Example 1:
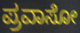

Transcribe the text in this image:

ಪ್ರವಾಸೋ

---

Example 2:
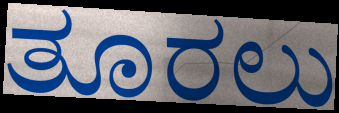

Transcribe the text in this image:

ತೂರಲು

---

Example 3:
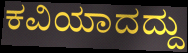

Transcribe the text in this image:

ಕವಿಯಾದದ್ದು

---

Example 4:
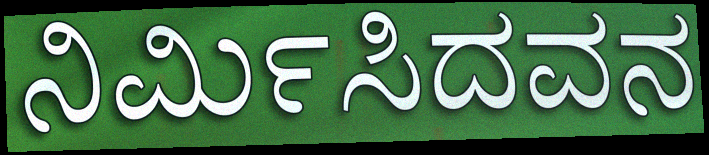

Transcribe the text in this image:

ನಿರ್ಮಿಸಿದವನ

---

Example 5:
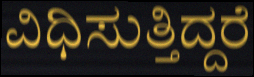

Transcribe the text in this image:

ವಿಧಿಸುತ್ತಿದ್ದರೆ